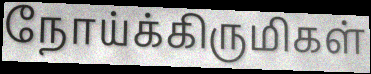
நோய்க்கிருமிகள்